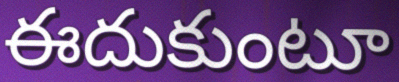
ఈదుకుంటూ